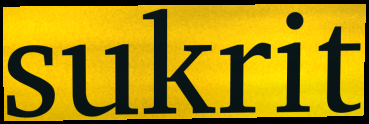
sukrit